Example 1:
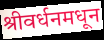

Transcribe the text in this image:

श्रीवर्धनमधून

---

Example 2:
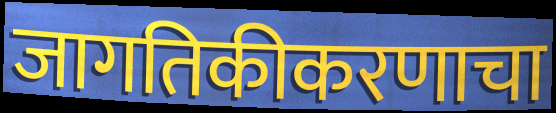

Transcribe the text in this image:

जागतिकीकरणाचा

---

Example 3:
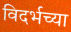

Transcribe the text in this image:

विदर्भच्या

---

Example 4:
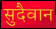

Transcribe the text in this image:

सुदैवान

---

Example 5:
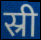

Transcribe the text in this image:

स्री